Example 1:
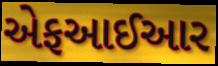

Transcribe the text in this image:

એફઆઈઆર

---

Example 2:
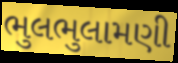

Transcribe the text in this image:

ભુલભુલામણી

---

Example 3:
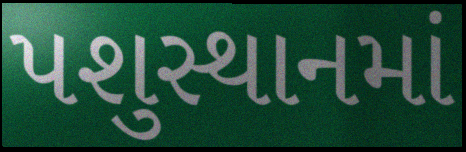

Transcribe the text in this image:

પશુસ્થાનમાં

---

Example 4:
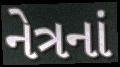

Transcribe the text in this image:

નેત્રનાં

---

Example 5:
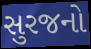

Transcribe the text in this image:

સુરજનો